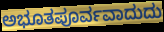
ಅಭೂತಪೂರ್ವವಾದುದು